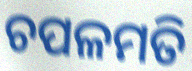
ଚପଳମତି